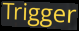
Trigger